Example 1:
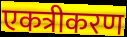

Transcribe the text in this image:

एकत्रीकरण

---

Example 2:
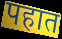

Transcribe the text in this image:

पहात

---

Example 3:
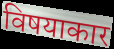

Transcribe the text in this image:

विषयाकार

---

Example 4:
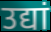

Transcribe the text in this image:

उद्यां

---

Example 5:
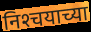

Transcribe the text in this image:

निश्चयाच्या